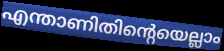
എന്താണിതിന്റെയെല്ലാം